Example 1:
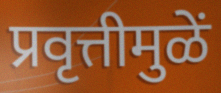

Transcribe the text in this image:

प्रवृत्तीमुळें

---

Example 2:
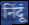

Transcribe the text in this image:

निंदूं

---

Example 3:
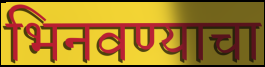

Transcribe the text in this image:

भिनवण्याचा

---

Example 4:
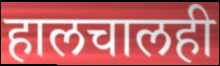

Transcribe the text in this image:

हालचालही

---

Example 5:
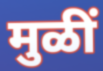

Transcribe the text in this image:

मुळीं